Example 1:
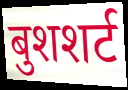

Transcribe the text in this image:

बुशशर्ट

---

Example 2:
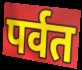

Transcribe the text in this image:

पर्वत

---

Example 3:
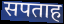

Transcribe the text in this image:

सपताह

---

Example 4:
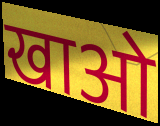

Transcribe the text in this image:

खाओ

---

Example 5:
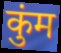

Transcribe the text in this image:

कुंम